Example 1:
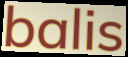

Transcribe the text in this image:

balis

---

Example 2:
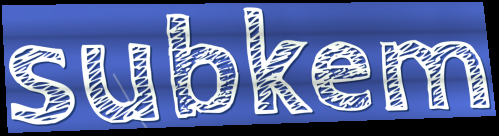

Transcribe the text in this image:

subkem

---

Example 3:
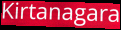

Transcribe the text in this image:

Kirtanagara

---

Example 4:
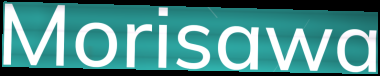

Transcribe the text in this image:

Morisawa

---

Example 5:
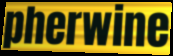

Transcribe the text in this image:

pherwine